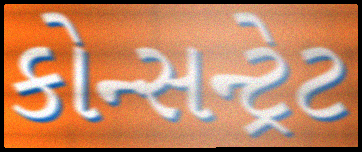
કોન્સન્ટ્રેટ